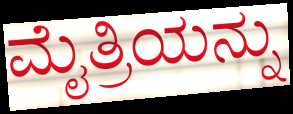
ಮೈತ್ರಿಯನ್ನು